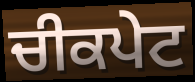
ਚੀਕਪੇਟ